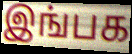
இங்பக